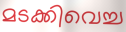
മടക്കിവെച്ച